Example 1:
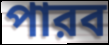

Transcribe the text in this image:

পারব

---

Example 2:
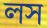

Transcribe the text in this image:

লস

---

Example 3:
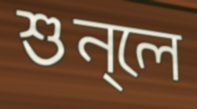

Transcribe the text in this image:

শুন্‌লে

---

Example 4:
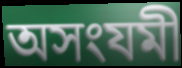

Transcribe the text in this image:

অসংযমী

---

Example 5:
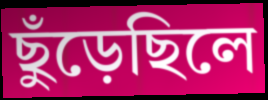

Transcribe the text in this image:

ছুঁড়েছিলে